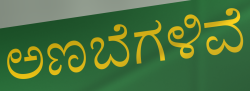
ಅಣಬೆಗಳಿವೆ